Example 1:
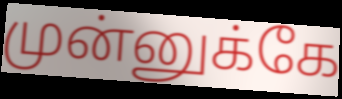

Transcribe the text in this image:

முன்னுக்கே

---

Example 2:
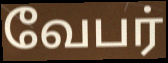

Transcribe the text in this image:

வேபர்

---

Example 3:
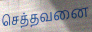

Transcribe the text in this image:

செத்தவனை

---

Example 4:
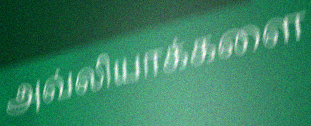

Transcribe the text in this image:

அவ்லியாக்களை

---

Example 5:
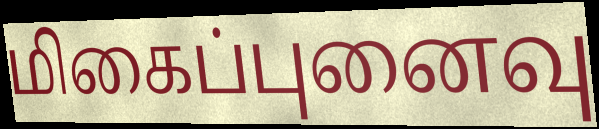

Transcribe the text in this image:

மிகைப்புனைவு